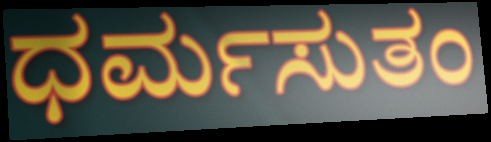
ಧರ್ಮಸುತಂ